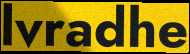
lvradhe